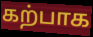
கற்பாக